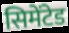
सिमेंटेड